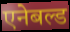
एनेबल्ड